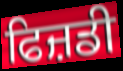
ਫਿਜ਼ਡੀ